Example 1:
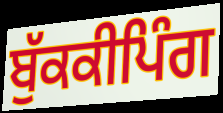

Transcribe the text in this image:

ਬੁੱਕਕੀਪਿੰਗ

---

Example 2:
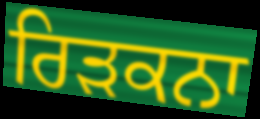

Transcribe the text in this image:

ਰਿੜਕਨਾ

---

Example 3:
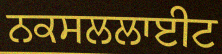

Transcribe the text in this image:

ਨਕਸਲਲਾਈਟ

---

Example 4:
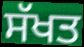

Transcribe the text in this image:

ਸੱਖਤ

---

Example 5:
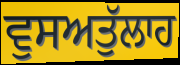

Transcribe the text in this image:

ਵੁਸਅਤੁੱਲਾਹ